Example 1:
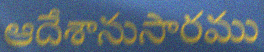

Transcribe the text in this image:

ఆదేశానుసారము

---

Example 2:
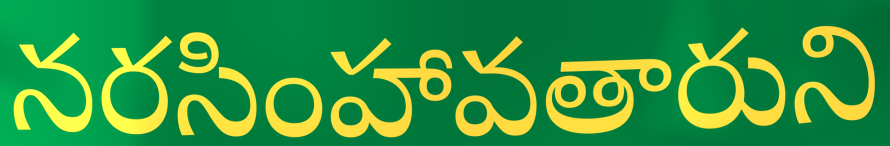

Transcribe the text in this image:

నరసింహావతారుని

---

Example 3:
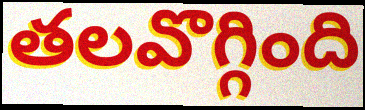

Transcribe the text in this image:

తలవొగ్గింది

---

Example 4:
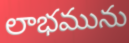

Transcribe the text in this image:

లాభమును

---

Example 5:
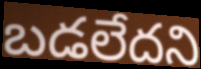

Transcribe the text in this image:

బడలేదని